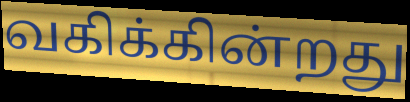
வகிக்கின்றது